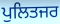
ਪੁਲਿਤਜਰ